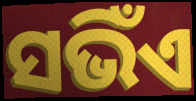
ସଭିଁଏ